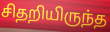
சிதறியிருந்த